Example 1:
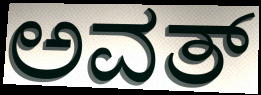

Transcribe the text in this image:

ಅವತ್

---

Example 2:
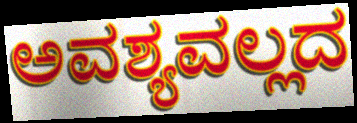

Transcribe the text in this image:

ಅವಶ್ಯವಲ್ಲದ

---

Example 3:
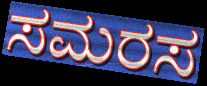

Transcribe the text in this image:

ಸಮರಸ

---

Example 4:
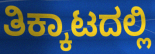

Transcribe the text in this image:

ತಿಕ್ಕಾಟದಲ್ಲಿ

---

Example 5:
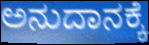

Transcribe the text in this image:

ಅನುದಾನಕ್ಕೆ